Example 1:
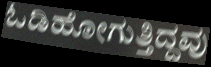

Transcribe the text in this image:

ಓಡಿಹೋಗುತ್ತಿದ್ದವು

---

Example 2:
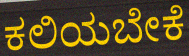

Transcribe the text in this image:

ಕಲಿಯಬೇಕೆ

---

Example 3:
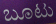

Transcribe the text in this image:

ಬೂಟು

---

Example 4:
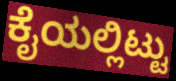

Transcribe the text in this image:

ಕೈಯಲ್ಲಿಟ್ಟು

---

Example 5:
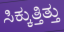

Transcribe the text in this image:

ಸಿಕ್ಕುತ್ತಿತ್ತು